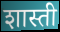
शास्ती